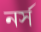
নর্স